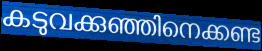
കടുവക്കുഞ്ഞിനെക്കണ്ട